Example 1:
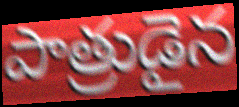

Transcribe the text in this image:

పాత్రుడైన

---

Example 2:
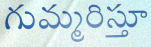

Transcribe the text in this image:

గుమ్మరిస్తూ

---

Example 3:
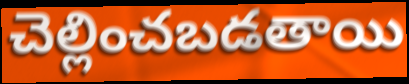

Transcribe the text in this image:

చెల్లించబడతాయి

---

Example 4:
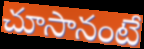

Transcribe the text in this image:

చూసానంటే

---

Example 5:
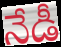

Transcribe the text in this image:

నేడీ